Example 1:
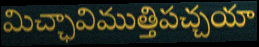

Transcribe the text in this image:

మిచ్ఛావిముత్తిపచ్చయా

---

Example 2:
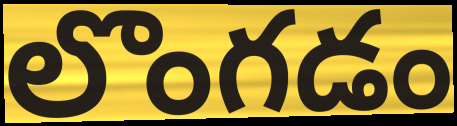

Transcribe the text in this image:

లొంగడం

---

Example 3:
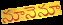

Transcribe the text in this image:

నూనెనూ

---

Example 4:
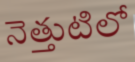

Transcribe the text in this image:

నెత్తుటిలో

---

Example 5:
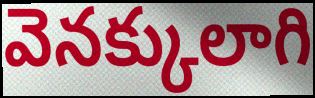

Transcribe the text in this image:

వెనక్కులాగి